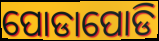
ପୋଡାପୋଡି